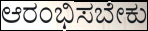
ಆರಂಭಿಸಬೇಕು